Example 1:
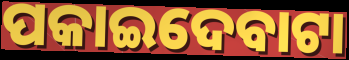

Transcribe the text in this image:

ପକାଇଦେବାଟା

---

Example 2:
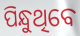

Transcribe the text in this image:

ପିନ୍ଧୁଥିବେ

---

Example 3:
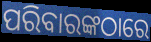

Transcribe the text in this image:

ପରିବାରଙ୍କଠାରେ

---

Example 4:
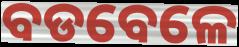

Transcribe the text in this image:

ବଡବେଳେ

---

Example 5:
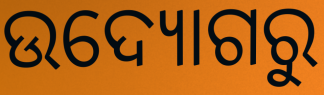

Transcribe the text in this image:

ଉଦ୍ୟୋଗରୁ